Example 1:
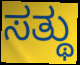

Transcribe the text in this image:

ಸತ್ಥು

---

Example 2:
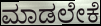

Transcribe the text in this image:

ಮಾಡಲೇಕೆ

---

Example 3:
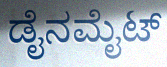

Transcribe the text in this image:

ಡೈನಮೈಟ್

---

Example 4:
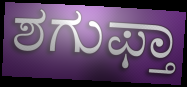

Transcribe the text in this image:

ಶಗುಫ್ತಾ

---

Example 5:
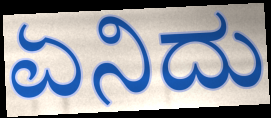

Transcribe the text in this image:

ಏನಿದು